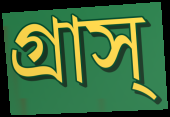
গ্রাস্